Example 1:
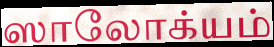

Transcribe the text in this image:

ஸாலோக்யம்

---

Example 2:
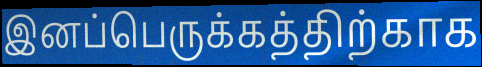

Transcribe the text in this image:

இனப்பெருக்கத்திற்காக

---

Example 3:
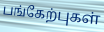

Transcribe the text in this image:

பங்கேற்புகள்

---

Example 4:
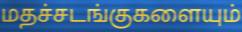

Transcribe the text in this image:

மதச்சடங்குகளையும்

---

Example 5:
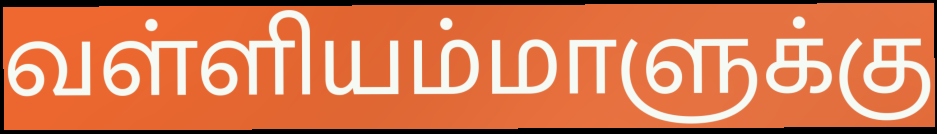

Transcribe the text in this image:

வள்ளியம்மாளுக்கு